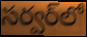
సర్వర్‌లో